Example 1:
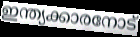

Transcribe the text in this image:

ഇന്ത്യക്കാരനോട്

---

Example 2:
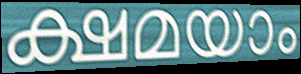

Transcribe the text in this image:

ക്ഷമയാം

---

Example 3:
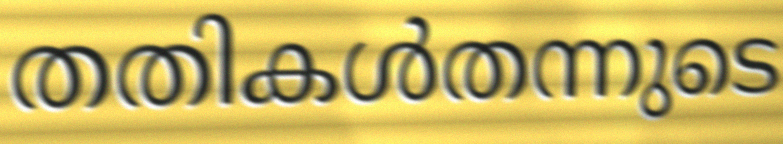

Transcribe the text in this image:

തതികൾതന്നുടെ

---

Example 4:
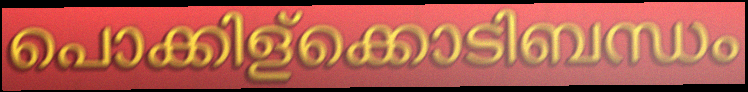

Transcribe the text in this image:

പൊക്കിള്ക്കൊടിബന്ധം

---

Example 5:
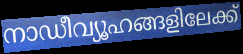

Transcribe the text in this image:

നാഡീവ്യൂഹങ്ങളിലേക്ക്